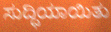
ಸುದ್ಧಿಯಾಯಿತು